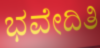
ಭವೇದಿತಿ